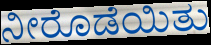
ನೀರೊಡೆಯಿತು